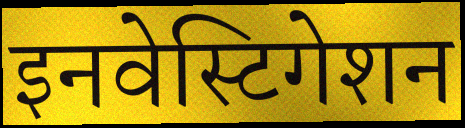
इनवेस्टिगेशन